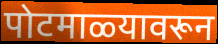
पोटमाळ्यावरून